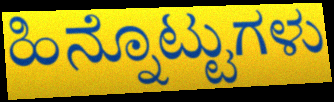
ಹಿನ್ನೊಟ್ಟುಗಳು